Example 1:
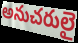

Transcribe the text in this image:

అనుచరులై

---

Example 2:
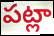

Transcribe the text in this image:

పట్లా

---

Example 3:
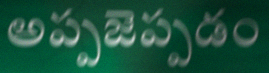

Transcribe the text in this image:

అప్పజెప్పడం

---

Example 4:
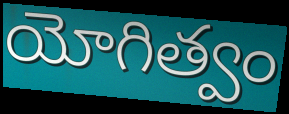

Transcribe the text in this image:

యోగిత్వం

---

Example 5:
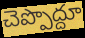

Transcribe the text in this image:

చెప్పొద్దూ